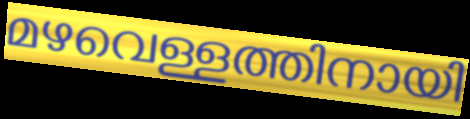
മഴവെള്ളത്തിനായി